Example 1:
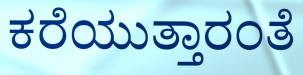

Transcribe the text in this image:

ಕರೆಯುತ್ತಾರಂತೆ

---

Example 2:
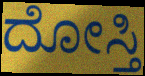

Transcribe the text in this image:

ದೋಸ್ತಿ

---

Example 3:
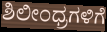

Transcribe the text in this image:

ಶಿಲೀಂಧ್ರಗಳಿಗೆ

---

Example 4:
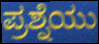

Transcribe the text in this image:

ಪ್ರಶ್ನೆಯು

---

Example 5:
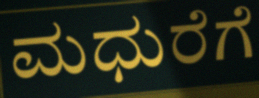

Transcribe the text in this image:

ಮಧುರೆಗೆ